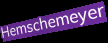
Hemschemeyer